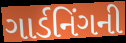
ગાર્ડનિંગની